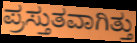
ಪ್ರಸ್ತುತವಾಗಿತ್ತು